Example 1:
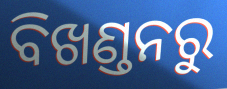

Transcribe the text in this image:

ବିଖଣ୍ଡନରୁ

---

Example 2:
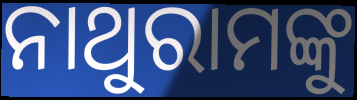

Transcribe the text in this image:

ନାଥୁରାମଙ୍କୁ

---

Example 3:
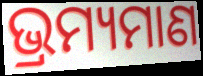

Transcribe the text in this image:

ଭ୍ରମ୍ୟମାଣ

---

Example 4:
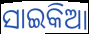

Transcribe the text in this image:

ସାଇକିଆ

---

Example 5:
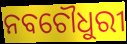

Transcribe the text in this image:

ନବଚୌଧୁରୀ